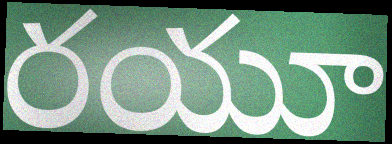
రయూ